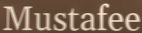
Mustafee